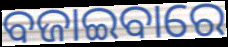
ବଜାଇବାରେ